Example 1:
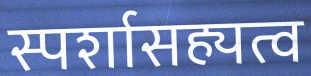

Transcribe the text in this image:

स्पर्शासह्यत्व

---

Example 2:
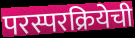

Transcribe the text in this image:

परस्परक्रियेची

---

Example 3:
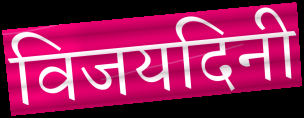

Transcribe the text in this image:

विजयदिनी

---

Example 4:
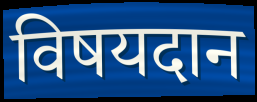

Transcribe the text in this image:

विषयदान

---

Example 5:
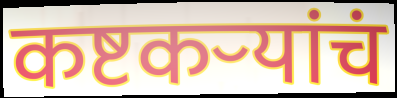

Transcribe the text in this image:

कष्टकऱ्यांचं